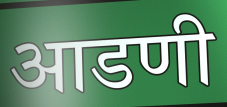
आडणी